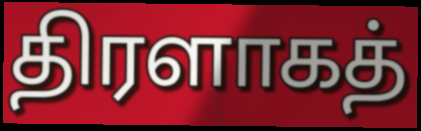
திரளாகத்